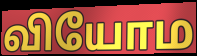
வியோம